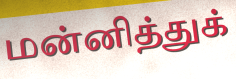
மன்னித்துக்